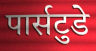
पार्सटुडे